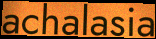
achalasia